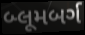
બ્લૂમબર્ગ